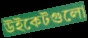
উইকেটগুলো